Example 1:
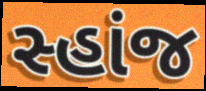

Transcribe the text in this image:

સ્હાંજ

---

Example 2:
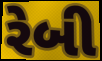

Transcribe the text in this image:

રેબી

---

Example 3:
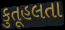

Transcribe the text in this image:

કુતૂહલતા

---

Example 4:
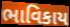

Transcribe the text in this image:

ભાવિકાય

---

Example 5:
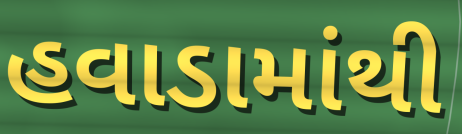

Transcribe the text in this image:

હવાડામાંથી